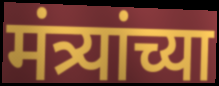
मंत्र्यांच्या